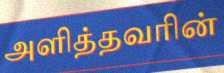
அளித்தவரின்